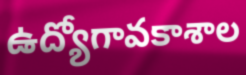
ఉద్యోగావకాశాల